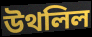
উথলিল